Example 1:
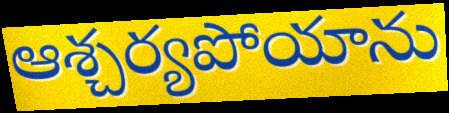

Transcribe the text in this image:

ఆశ్చర్యపోయాను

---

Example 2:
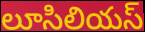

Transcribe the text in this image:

లూసిలియస్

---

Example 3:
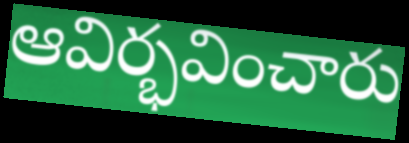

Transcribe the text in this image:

ఆవిర్భవించారు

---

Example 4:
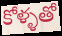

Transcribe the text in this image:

కోళ్ళతో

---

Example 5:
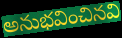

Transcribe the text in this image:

అనుభవించినవి